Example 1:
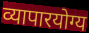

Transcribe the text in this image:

व्यापारयोग्य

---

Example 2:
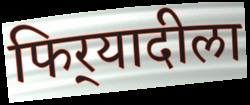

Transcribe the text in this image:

फिर्यादीला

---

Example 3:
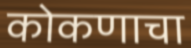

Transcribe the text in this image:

कोकणाचा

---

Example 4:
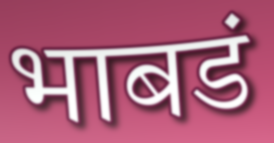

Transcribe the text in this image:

भाबडं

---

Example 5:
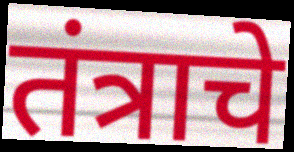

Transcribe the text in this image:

तंत्राचे